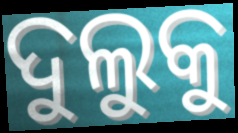
ଦୁଲୁକୁ